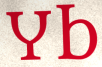
Yb